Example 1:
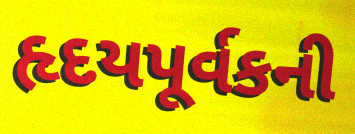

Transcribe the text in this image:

હૃદયપૂર્વકની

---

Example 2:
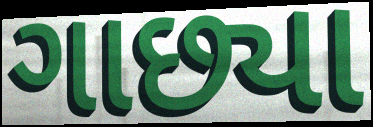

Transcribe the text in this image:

ગાછ્યા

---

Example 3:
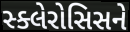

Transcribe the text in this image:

સ્ક્લેરોસિસને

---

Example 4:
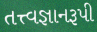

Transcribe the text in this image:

તત્ત્વજ્ઞાનરૂપી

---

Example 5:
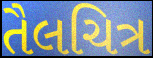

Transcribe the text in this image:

તૈલચિત્ર